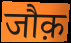
जौक़